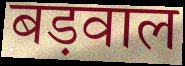
बड़वाल